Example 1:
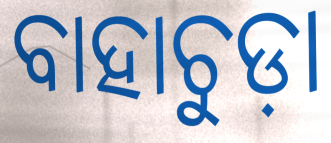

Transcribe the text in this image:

ବାହାଚୁଡ଼ା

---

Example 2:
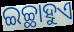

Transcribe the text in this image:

ଇଚ୍ଛାହୁଏ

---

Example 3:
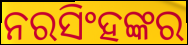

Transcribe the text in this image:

ନରସିଂହଙ୍କର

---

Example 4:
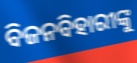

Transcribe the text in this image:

ବିଜନବିହାରୀଙ୍କୁ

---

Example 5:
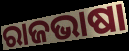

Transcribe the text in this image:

ରାଜଭାଷା